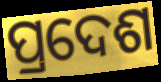
ପ୍ରଦେଶ